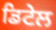
ਡਿਟੇਲ